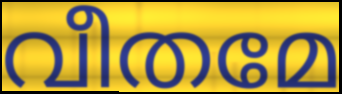
വീതമേ